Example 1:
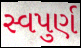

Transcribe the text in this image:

સ્વપુર્ણ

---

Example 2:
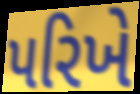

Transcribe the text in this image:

પરિખે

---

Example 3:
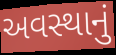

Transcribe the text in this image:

અવસ્થાનું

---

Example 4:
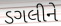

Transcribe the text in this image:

ડગલીને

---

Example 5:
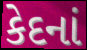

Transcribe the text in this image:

કેદનાં